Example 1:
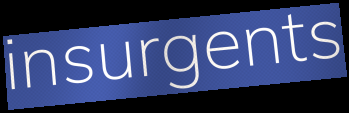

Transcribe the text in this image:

insurgents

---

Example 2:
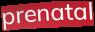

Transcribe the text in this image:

prenatal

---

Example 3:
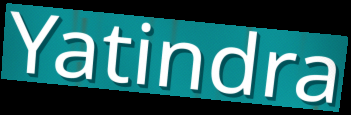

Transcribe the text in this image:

Yatindra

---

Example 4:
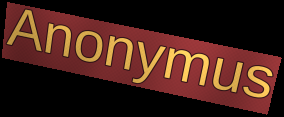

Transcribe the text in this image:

Anonymus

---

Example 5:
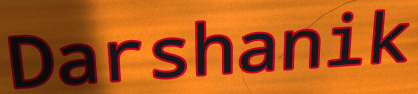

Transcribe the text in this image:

Darshanik